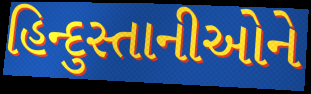
હિન્દુસ્તાનીઓને